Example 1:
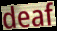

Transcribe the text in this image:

deaf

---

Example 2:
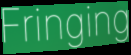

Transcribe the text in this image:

Fringing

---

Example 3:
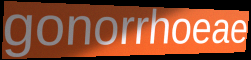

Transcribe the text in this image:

gonorrhoeae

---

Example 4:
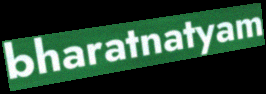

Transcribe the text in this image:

bharatnatyam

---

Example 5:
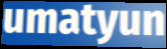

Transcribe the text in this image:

umatyun